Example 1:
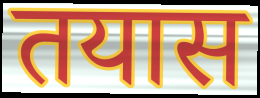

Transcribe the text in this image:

तयास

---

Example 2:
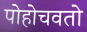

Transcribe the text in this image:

पोहोचवतो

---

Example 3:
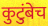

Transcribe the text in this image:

कुटुंबेच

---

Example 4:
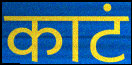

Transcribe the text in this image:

काटं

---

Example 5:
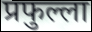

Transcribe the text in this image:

प्रफुल्ला